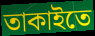
তাকাইতে